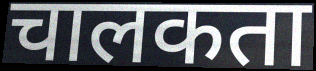
चालकता